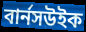
বার্নসউইক